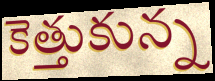
కెత్తుకున్న